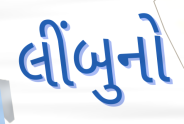
લીંબુનો